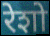
रेशो